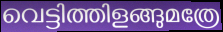
വെട്ടിത്തിളങ്ങുമത്രേ